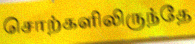
சொற்களிலிருந்தே